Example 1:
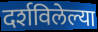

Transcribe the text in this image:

दर्शविलेल्या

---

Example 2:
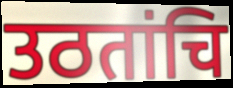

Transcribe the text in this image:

उठतांचि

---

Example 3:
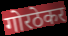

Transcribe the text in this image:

गोरठेकर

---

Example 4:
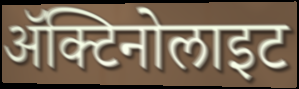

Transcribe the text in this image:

ॲक्टिनोलाइट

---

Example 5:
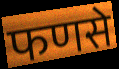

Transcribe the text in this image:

फणसे